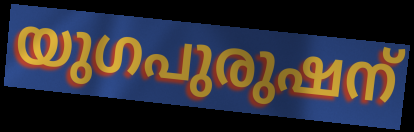
യുഗപുരുഷന്